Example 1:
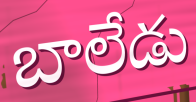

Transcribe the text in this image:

బాలేడు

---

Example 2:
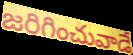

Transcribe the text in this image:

జరిగించువాడే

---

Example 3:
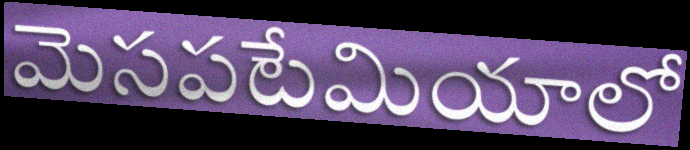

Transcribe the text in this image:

మెసపటేమియాలో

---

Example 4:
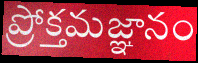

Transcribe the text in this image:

ప్రోక్తమజ్ఞానం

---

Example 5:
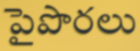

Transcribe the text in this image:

పైపొరలు